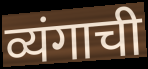
व्यंगाची